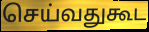
செய்வதுகூட